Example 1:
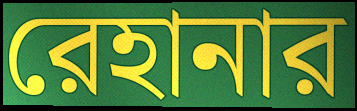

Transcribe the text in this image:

রেহানার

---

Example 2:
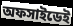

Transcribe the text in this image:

অফসাইডেই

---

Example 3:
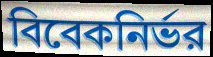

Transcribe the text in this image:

বিবেকনির্ভর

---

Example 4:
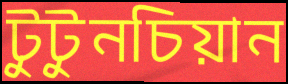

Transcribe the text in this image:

টুটুনচিয়ান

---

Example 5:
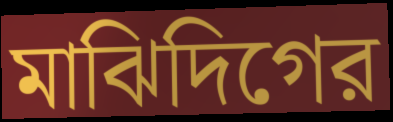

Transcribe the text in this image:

মাঝিদিগের